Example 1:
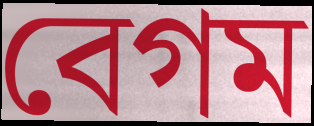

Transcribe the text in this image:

বেগম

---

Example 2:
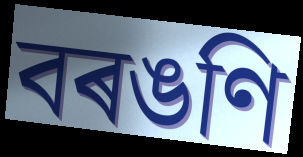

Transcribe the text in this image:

বৰঙণি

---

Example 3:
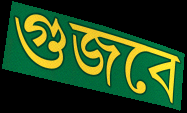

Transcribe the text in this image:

গুজবে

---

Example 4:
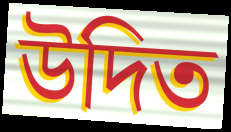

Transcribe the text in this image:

উদিত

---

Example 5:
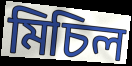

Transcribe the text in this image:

মিচিল